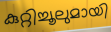
കുറ്റിച്ചൂലുമായി